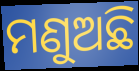
ମଣୁଅଛି